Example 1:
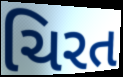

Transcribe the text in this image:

ચિરત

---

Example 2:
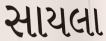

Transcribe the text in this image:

સાયલા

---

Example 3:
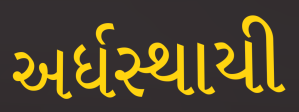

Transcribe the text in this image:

અર્ધસ્થાયી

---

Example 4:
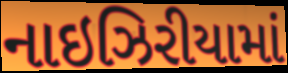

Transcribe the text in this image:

નાઇઝિરીયામાં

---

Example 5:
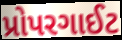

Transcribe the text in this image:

પ્રોપરગાઈટ